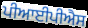
ਪੀਆਈਪੀਐਸ